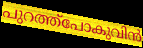
പുറത്ത്പോകുവിൻ